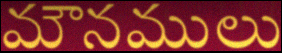
మౌనములు